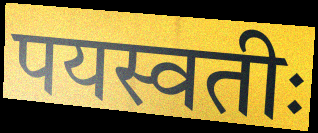
पयस्वतीः